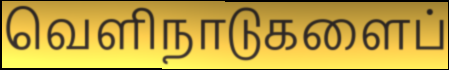
வெளிநாடுகளைப்